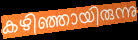
കഴിഞ്ഞായിരുന്നു